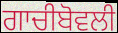
ਗਾਚੀਬੋਵਲੀ